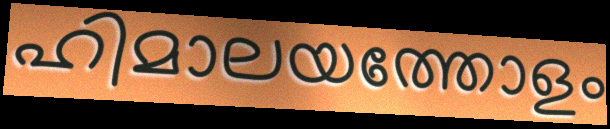
ഹിമാലയത്തോളം